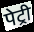
पेट्री